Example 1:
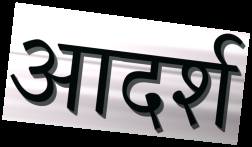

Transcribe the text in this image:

आदर्श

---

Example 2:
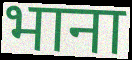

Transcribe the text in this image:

भाना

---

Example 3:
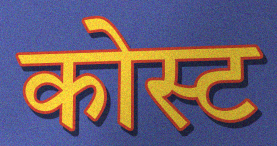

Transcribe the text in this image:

कोस्ट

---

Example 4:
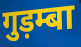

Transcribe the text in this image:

गुड़म्बा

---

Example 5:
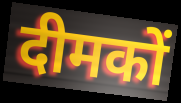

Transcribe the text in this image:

दीमकों